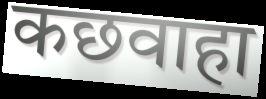
कछवाहा